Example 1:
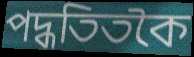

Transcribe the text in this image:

পদ্ধতিতকৈ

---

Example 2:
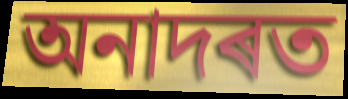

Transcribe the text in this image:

অনাদৰত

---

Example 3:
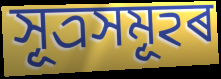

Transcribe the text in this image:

সূত্ৰসমূহৰ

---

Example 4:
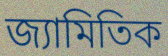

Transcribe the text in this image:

জ্যামিতিক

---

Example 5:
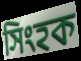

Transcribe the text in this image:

সিংহক